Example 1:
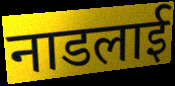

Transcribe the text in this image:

नाडलाई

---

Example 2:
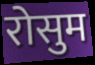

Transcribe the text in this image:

रोसुम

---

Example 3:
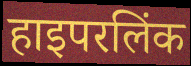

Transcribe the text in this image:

हाइपरलिंक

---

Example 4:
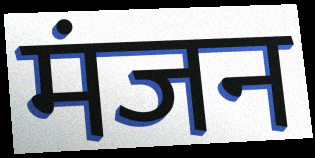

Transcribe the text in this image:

मंजन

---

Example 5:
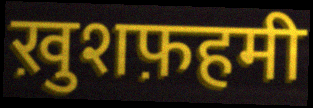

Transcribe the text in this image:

ख़ुशफ़हमी